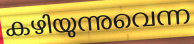
കഴിയുന്നുവെന്ന